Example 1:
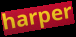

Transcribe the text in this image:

harper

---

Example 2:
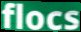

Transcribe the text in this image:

flocs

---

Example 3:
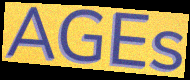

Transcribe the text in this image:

AGEs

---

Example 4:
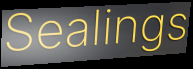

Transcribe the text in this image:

Sealings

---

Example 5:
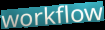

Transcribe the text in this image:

workflow